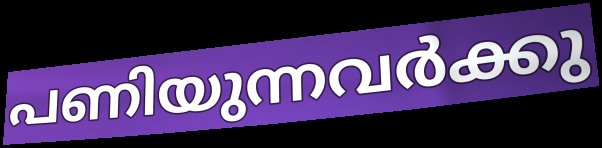
പണിയുന്നവർക്കു